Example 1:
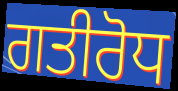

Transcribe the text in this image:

ਗਤੀਰੋਧ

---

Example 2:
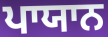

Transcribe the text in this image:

ਪਾਯਾਨ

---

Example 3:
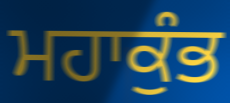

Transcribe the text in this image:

ਮਹਾਕੁੰਭ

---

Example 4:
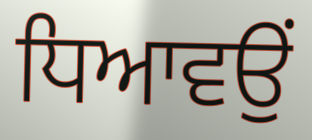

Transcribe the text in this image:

ਧਿਆਵਉਂ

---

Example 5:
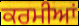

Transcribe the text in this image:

ਕਰਮੀਆਂ